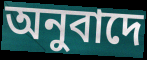
অনুবাদে